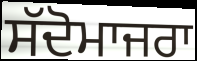
ਸੱਦੋਮਾਜਰਾ